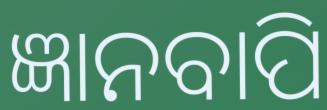
ଜ୍ଞାନବାପି